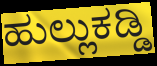
ಹುಲ್ಲುಕಡ್ಡಿ